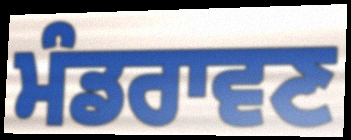
ਮੰਡਰਾਵਣ